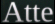
Atte